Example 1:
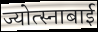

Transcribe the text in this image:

ज्योत्स्नाबाई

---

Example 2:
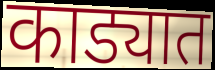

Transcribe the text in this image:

काड्यात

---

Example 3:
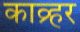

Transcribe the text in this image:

काव्र्हर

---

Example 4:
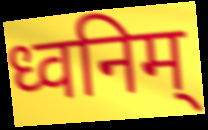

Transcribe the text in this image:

ध्वनिम्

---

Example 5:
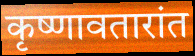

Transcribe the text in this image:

कृष्णावतारांत